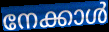
നേക്കാൾ